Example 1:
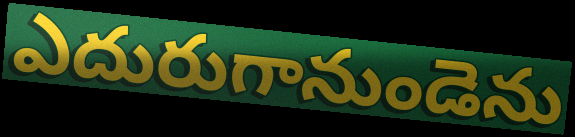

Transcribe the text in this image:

ఎదురుగానుండెను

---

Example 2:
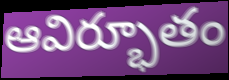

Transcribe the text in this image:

ఆవిర్భూతం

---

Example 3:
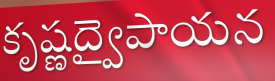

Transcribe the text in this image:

కృష్ణద్వైపాయన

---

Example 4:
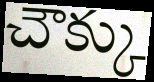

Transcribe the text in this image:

చౌక్కు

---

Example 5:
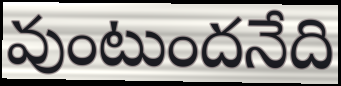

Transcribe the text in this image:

వుంటుందనేది